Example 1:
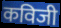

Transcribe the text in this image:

कविजी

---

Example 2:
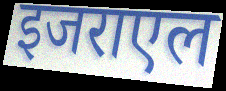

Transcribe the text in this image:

इजराएल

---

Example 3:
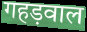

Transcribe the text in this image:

गहड़वाल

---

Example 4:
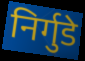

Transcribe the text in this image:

निर्गुडे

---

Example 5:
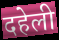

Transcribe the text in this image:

दहेली